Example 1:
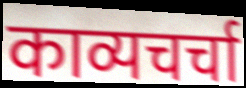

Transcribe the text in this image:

काव्यचर्चा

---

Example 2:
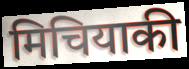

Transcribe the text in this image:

मिचियाकी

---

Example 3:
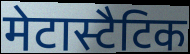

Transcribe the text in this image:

मेटास्टैटिक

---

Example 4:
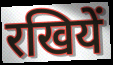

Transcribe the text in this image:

रखियें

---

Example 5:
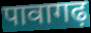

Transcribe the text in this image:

पावागढ़